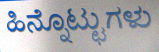
ಹಿನ್ನೊಟ್ಟುಗಳು